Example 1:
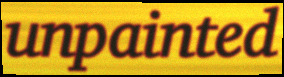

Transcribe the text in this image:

unpainted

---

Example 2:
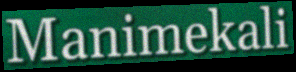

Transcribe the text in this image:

Manimekali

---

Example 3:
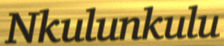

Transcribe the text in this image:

Nkulunkulu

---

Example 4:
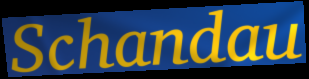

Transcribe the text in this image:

Schandau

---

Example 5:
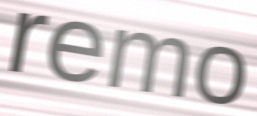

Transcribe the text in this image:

remo